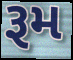
રૂમ